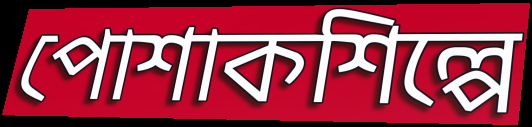
পোশাকশিল্পে